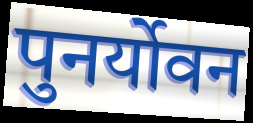
पुनर्योवन